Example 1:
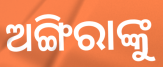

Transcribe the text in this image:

ଅଙ୍ଗିରାଙ୍କୁ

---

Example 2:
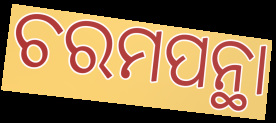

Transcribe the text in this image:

ଚରମପନ୍ଥା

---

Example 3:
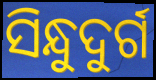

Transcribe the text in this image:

ସିନ୍ଧୁଦୁର୍ଗ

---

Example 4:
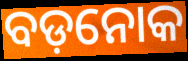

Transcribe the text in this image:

ବଡ଼ନୋକ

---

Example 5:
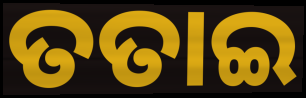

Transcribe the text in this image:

ତତାଇ